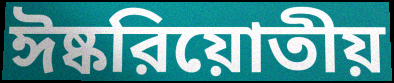
ঈষ্করিয়োতীয়